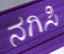
ನಗಿಸಿ